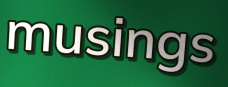
musings